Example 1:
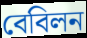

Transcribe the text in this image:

বেবিলন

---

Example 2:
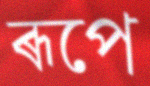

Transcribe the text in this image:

ৰূপে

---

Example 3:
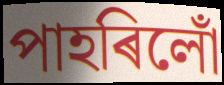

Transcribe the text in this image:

পাহৰিলোঁ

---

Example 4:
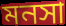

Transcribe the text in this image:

মনসা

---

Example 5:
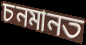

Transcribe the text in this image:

চনমানত